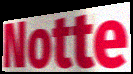
Notte